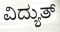
ವಿದ್ಯುತ್